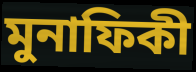
মুনাফিকী